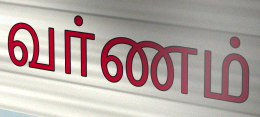
வர்ணம்